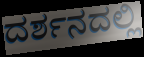
ದರ್ಶನದಲ್ಲಿ